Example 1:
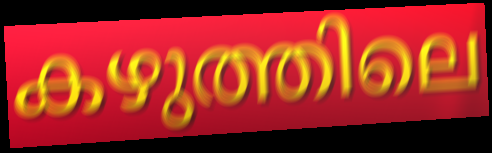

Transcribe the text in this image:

കഴുത്തിലെ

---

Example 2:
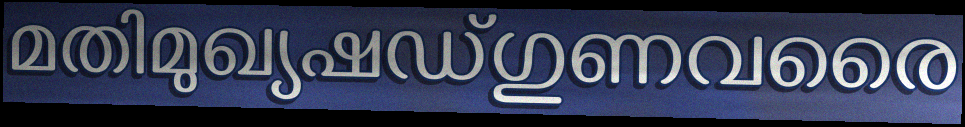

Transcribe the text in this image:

മതിമുഖ്യഷഡ്ഗുണവരൈ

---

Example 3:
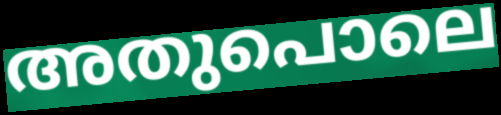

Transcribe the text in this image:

അതുപൊലെ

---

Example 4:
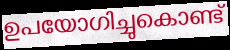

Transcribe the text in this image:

ഉപയോഗിച്ചുകൊണ്ട്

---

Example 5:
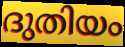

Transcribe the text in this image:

ദുതിയം